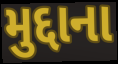
મુદ્દાના